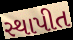
સ્થાપીત